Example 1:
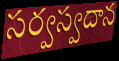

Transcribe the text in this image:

సర్వస్వదాన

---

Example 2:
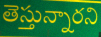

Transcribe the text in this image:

తెస్తున్నారని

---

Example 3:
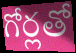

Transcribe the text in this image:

గోర్లతో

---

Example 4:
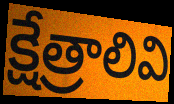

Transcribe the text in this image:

క్షేత్రాలివి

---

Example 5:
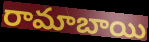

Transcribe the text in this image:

రామాబాయి